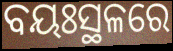
ବୟଃସ୍ଥଳରେ